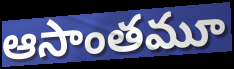
ఆసాంతమూ